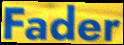
Fader